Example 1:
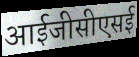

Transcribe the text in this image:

आईजीसीएसई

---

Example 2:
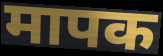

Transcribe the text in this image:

मापक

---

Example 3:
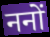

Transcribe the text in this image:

ननों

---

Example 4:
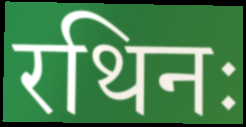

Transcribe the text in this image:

रथिनः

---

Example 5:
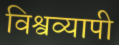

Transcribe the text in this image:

विश्वव्यापी